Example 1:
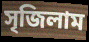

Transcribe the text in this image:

সৃজিলাম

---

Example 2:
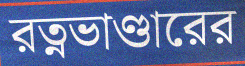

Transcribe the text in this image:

রত্নভাণ্ডারের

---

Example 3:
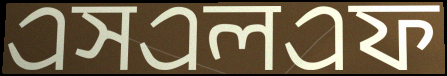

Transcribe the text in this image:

এসএলএফ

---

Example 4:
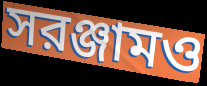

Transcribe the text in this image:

সরঞ্জামও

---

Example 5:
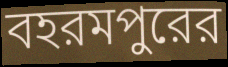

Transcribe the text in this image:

বহরমপুরের